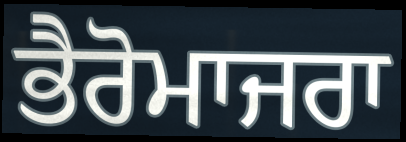
ਭੈਰੋਮਾਜਰਾ